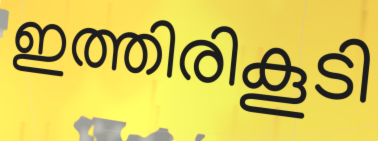
ഇത്തിരികൂടി